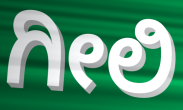
ಗೀಲಿ